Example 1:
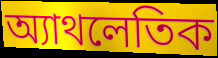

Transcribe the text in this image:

অ্যাথলেতিক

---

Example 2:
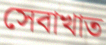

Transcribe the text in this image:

সেবাখাত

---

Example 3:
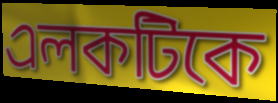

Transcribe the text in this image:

এলকটিকে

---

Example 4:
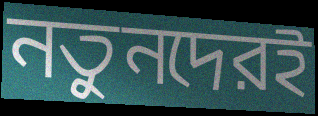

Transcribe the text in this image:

নতুনদেরই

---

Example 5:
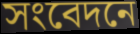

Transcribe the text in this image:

সংবেদনে